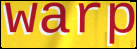
warp